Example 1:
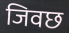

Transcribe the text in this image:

जिवछ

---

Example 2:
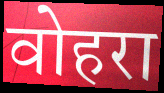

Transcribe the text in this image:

वोहरा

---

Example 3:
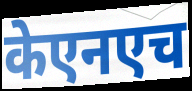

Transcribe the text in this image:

केएनएच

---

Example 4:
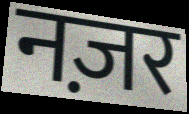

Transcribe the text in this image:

नज़र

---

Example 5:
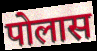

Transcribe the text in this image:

पोलास